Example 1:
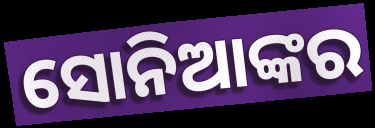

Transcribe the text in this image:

ସୋନିଆଙ୍କର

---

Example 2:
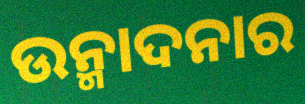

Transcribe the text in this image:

ଉନ୍ମାଦନାର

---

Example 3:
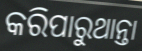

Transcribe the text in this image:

କରିପାରୁଥାନ୍ତା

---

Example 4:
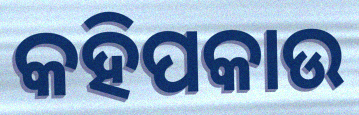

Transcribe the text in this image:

କହିପକାଉ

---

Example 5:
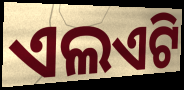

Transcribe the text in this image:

ଏଲଏଟି